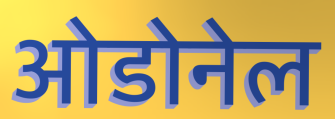
ओडोनेल